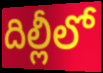
దిల్లీలో